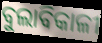
ବୁଲାବିକାଳୀ